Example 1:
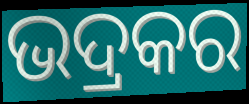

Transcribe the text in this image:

ଭଦ୍ରକର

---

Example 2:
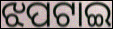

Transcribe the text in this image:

ଝପଟାଇ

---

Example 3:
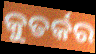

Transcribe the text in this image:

କୁତର୍କର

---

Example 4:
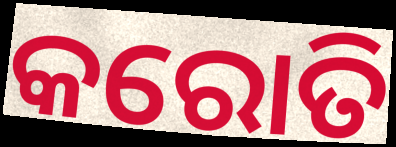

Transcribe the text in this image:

କରୋତି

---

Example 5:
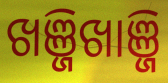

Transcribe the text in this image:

ଖଞ୍ଜିଖାଞ୍ଜି